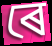
ৰে